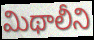
మిథాలీని